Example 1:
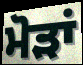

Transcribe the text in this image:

ਮੋੜਾਂ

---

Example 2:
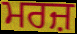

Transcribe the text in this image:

ਮਰਜ਼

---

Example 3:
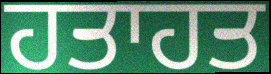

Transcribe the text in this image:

ਹਤਾਹਤ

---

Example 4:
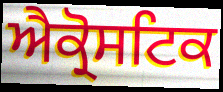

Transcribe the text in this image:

ਐਕ੍ਰੋਸਟਿਕ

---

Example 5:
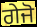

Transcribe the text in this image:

ਗੇਜੋ